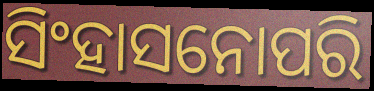
ସିଂହାସନୋପରି